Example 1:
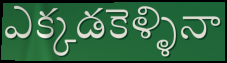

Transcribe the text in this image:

ఎక్కడకెళ్ళినా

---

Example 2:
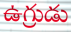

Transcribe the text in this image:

ఉగ్రుడు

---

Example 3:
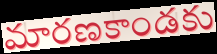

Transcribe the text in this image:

మారణకాండకు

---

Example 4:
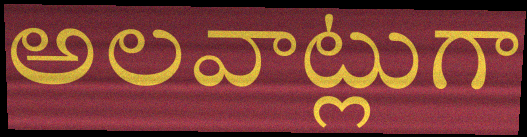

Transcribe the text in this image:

అలవాట్లుగా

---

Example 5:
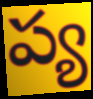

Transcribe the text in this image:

ప్య